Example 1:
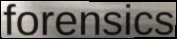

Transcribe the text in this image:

forensics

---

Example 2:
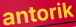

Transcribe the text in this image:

antorik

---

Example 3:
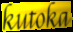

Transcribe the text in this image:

kutoka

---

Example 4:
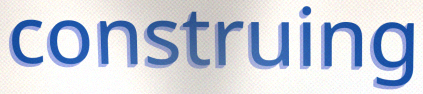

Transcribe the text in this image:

construing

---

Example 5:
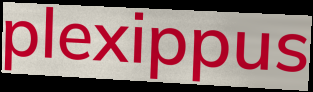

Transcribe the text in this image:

plexippus